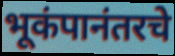
भूकंपानंतरचे